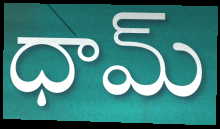
ధామ్